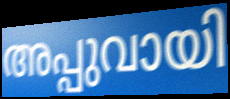
അപ്പുവായി